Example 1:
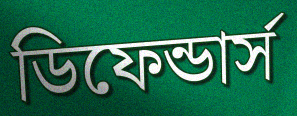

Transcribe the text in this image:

ডিফেন্ডার্স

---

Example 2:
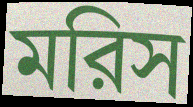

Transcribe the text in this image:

মরিস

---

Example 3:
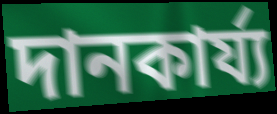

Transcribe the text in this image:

দানকার্য্য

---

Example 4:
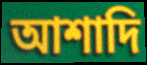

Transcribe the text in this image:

আশাদি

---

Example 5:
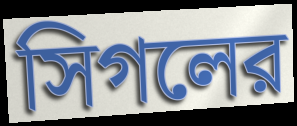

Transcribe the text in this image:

সিগলের